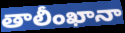
తాలీంఖానా